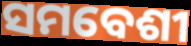
ସମବେଶୀ